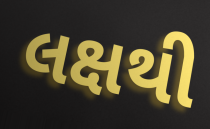
લક્ષથી